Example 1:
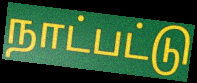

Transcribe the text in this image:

நாட்பட்டு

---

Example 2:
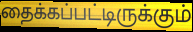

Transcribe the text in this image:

தைக்கப்பட்டிருக்கும்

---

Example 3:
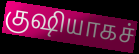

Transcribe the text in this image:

குஷியாகச்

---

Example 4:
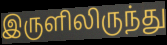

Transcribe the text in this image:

இருளிலிருந்து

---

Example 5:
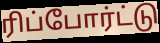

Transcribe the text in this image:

ரிப்போர்ட்டு